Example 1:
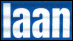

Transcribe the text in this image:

laan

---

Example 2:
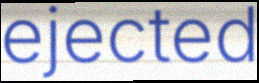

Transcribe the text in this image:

ejected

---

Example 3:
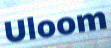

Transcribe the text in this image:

Uloom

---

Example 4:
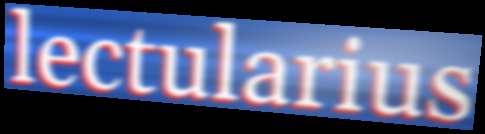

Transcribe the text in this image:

lectularius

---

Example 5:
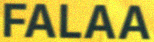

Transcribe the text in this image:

FALAA